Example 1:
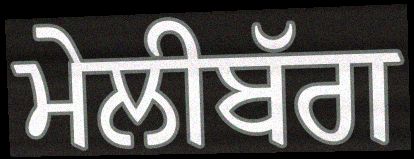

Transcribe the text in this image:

ਮੇਲੀਬੱਗ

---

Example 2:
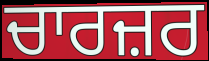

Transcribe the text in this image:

ਚਾਰਜ਼ਰ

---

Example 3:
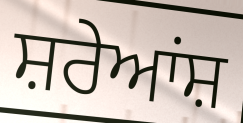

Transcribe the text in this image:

ਸ਼ਰੇਆਂਸ਼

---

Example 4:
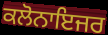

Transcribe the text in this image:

ਕਲੋਨਾਇਜਰ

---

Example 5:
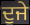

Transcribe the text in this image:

ਦੁਜੇ